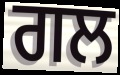
ਗਲ